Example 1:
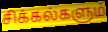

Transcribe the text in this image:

சிக்கல்களும்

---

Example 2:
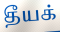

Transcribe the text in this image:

தீயக்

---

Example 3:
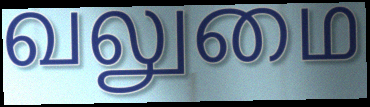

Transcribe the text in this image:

வலுமை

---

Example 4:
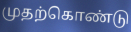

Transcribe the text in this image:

முதற்கொண்டு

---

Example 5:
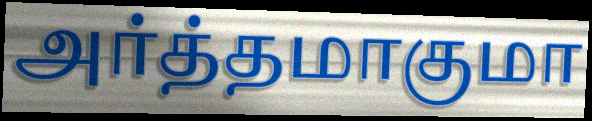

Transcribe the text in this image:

அர்த்தமாகுமா